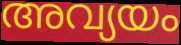
അവ്യയം